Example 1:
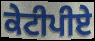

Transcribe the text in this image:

ਕੇਟੀਪੀਏ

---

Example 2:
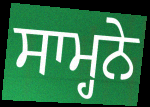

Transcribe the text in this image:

ਸਾਮ੍ਹਨੇ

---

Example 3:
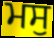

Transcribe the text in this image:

ਮਸੁ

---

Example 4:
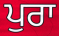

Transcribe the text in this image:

ਪੁਰਾ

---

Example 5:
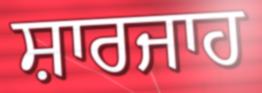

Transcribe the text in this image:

ਸ਼ਾਰਜਾਹ